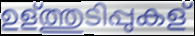
ഉള്ത്തുടിപ്പുകള്